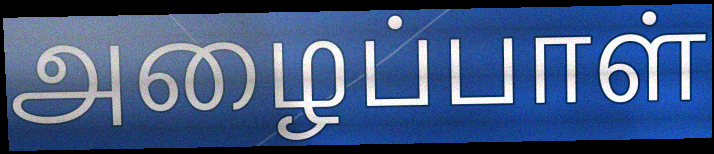
அழைப்பாள்